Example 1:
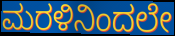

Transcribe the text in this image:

ಮರಳಿನಿಂದಲೇ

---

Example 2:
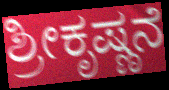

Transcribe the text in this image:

ಶ್ರೀಕೃಷ್ಣನೆ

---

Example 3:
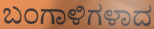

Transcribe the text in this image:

ಬಂಗಾಳಿಗಳಾದ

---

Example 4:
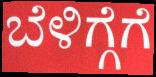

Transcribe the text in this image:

ಬೆಳಿಗ್ಗೆಗೆ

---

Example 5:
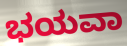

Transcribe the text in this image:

ಭಯವಾ